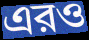
এরও